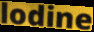
lodine